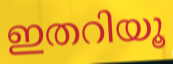
ഇതറിയൂ